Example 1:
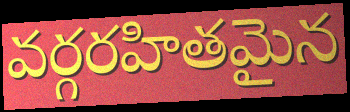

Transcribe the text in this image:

వర్గరహితమైన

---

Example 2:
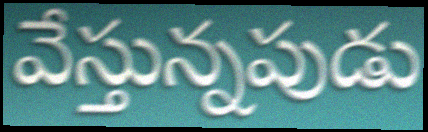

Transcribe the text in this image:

వేస్తున్నపుడు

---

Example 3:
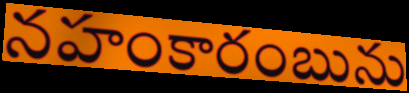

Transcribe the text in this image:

నహంకారంబును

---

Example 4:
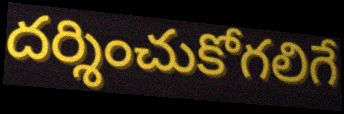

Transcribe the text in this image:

దర్శించుకోగలిగే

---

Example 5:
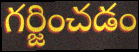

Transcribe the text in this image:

గర్జించడం